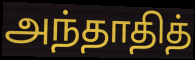
அந்தாதித்